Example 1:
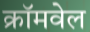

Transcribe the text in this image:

क्रॉमवेल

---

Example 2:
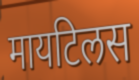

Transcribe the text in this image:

मायटिलस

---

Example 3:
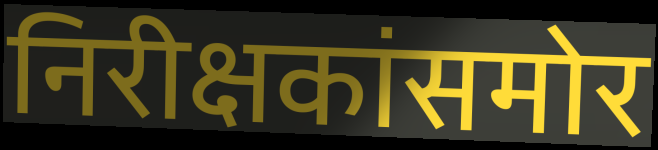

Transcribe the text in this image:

निरीक्षकांसमोर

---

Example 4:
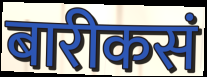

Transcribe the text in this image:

बारीकसं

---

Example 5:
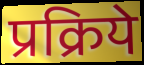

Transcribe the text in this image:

प्रक्रिये